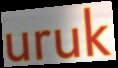
uruk